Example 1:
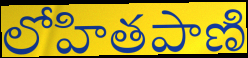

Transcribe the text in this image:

లోహితపాణి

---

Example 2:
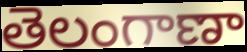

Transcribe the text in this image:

తెలంగాణా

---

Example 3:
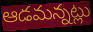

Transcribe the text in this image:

ఆడమన్నట్లు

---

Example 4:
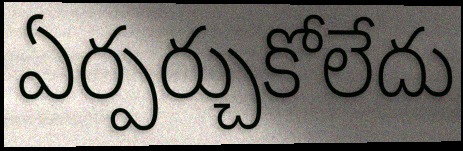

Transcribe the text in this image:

ఏర్పర్చుకోలేదు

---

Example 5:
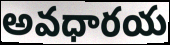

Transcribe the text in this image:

అవధారయ